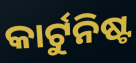
କାର୍ଟୁନିଷ୍ଟ